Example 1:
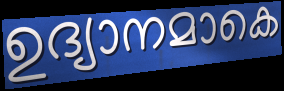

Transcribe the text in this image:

ഉദ്യാനമാകെ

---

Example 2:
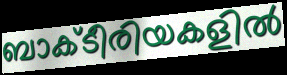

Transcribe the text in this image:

ബാക്ടീരിയകളിൽ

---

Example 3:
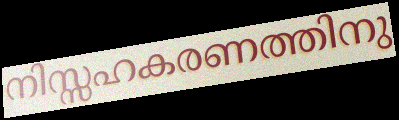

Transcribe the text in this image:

നിസ്സഹകരണത്തിനു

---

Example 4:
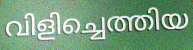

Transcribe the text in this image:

വിളിച്ചെത്തിയ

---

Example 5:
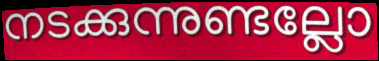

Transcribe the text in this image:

നടക്കുന്നുണ്ടല്ലോ